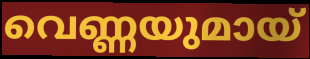
വെണ്ണയുമായ്